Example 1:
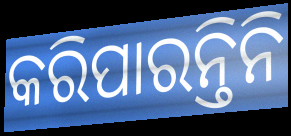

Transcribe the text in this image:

କରିପାରନ୍ତିନି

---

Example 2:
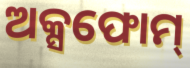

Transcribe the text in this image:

ଅକ୍ସଫୋମ୍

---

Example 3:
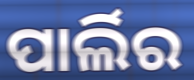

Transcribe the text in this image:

ପାର୍ଲିର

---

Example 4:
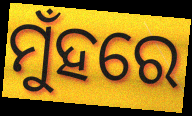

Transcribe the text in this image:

ମୁଁହରେ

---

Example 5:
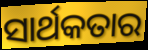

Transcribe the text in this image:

ସାର୍ଥକତାର